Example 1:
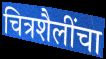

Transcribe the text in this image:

चित्रशैलींचा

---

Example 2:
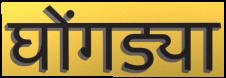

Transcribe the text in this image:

घोंगड्या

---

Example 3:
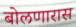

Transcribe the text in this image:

बोलणारास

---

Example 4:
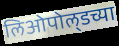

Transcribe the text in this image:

लिओपोल्डच्या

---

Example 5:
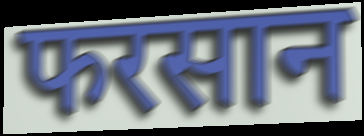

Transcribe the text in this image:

फरसान